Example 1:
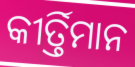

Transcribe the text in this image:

କୀର୍ତ୍ତିମାନ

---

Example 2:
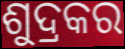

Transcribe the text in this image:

ଶୁଦ୍ରକର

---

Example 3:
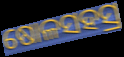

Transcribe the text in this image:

ଷୋଳସହସ୍ର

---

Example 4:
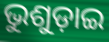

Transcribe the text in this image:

ଭୁଶୁଡ଼ାଇ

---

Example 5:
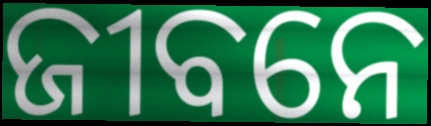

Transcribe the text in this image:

ଜୀବନେ